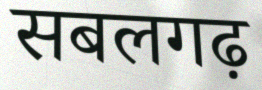
सबलगढ़